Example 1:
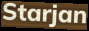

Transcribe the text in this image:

Starjan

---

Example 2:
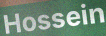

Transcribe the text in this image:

Hossein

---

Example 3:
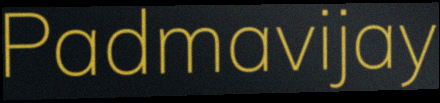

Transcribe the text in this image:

Padmavijay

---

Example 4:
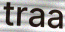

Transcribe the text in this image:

traa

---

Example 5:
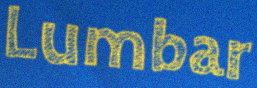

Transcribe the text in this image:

Lumbar